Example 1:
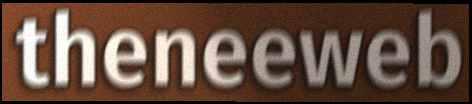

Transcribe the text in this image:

theneeweb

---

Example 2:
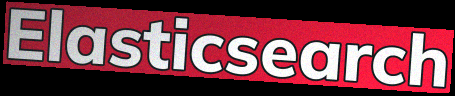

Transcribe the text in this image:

Elasticsearch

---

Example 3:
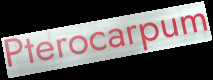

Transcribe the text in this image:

Pterocarpum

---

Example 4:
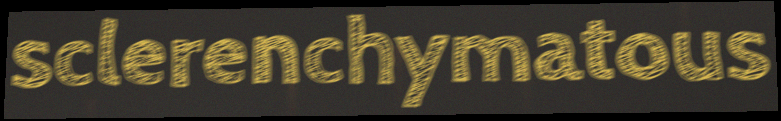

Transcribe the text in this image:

sclerenchymatous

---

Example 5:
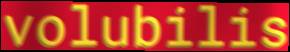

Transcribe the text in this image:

volubilis